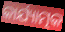
କାର୍ଯ୍ୟାତ୍ମକ